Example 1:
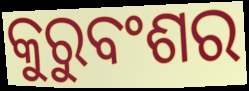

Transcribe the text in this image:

କୁରୁବଂଶର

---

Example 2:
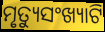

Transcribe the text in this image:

ମୃତ୍ୟୁସଂଖ୍ୟାଟି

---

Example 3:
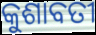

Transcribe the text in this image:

କୁଶାବତୀ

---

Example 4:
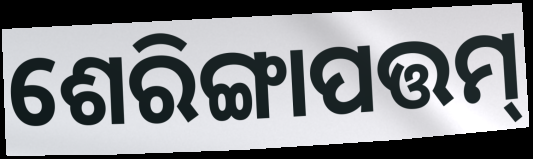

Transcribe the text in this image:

ଶେରିଙ୍ଗାପତ୍ତମ୍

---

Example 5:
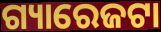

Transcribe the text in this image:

ଗ୍ୟାରେଜଟା